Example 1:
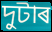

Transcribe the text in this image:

দুটাৰ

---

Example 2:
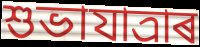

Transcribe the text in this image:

শুভাযাত্ৰাৰ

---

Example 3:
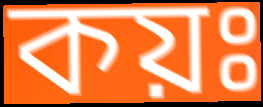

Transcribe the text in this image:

কয়ঃ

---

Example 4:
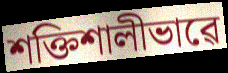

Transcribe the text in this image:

শক্তিশালীভাৱে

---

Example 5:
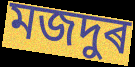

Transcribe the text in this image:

মজদুৰ